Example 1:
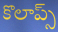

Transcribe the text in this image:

కొలాప్స్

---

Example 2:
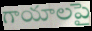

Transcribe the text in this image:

గాయాలపై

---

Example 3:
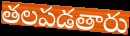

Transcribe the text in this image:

తలపడతారు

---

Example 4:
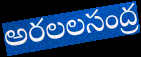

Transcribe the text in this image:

అరలలసంద్ర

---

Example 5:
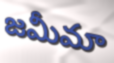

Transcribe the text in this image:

జమీమా